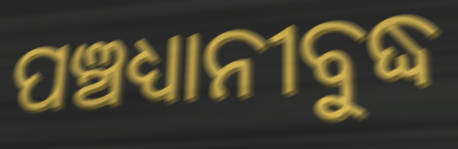
ପଞ୍ଚଧ୍ୟାନୀବୁଦ୍ଧ